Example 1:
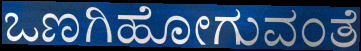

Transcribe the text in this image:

ಒಣಗಿಹೋಗುವಂತೆ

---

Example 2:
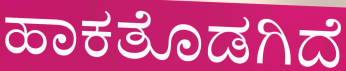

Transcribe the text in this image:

ಹಾಕತೊಡಗಿದೆ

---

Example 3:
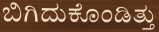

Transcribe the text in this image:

ಬಿಗಿದುಕೊಂಡಿತ್ತು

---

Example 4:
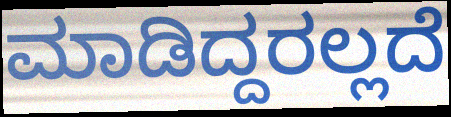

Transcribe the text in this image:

ಮಾಡಿದ್ದರಲ್ಲದೆ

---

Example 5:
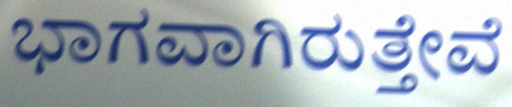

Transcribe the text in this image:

ಭಾಗವಾಗಿರುತ್ತೇವೆ